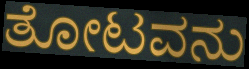
ತೋಟವನು